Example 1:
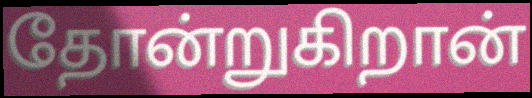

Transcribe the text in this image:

தோன்றுகிறான்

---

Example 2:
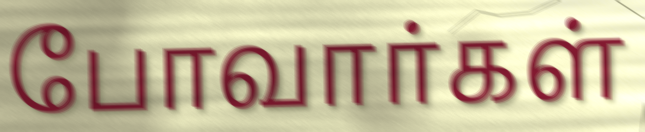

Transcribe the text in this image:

போவார்கள்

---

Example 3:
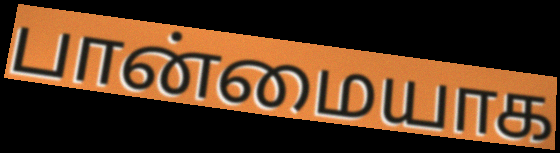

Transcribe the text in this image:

பான்மையாக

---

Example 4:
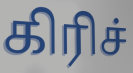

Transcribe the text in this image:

கிரிச்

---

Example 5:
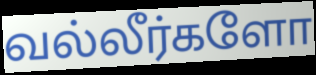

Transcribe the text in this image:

வல்லீர்களோ